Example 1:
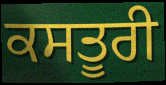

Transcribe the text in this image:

ਕਸਤੂਰੀ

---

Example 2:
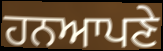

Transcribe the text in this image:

ਹਨਆਪਣੇ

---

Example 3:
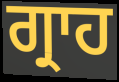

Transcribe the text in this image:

ਗ੍ਰਾਹ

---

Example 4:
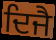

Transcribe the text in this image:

ਦਿਜੈ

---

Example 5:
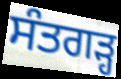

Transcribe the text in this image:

ਸੰਤਗੜ੍ਹ